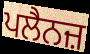
ਪਲੈਨਜ਼